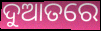
ଦୁଆତରେ